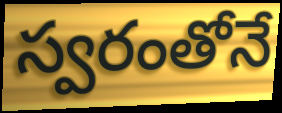
స్వరంతోనే